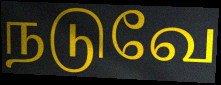
நடுவே